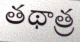
తథాత్ర